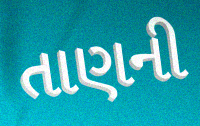
તાણની